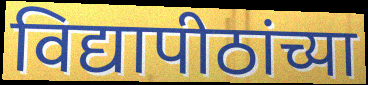
विद्यापीठांच्या